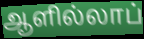
ஆளில்லாப்